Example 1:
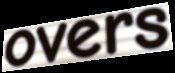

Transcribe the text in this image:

overs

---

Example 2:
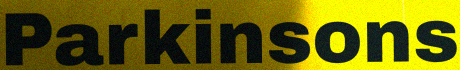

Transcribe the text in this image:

Parkinsons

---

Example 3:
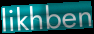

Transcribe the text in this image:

likhben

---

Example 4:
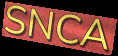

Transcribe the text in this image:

SNCA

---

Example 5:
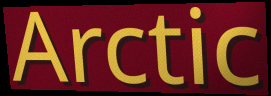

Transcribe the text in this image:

Arctic